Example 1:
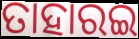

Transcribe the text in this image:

ତାହାରଇ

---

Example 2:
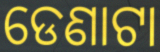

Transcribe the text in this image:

ଡେଣାଟା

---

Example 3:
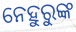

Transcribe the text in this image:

ନେହୁରୁଙ୍କ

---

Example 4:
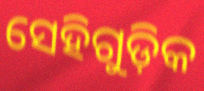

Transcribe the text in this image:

ସେହିଗୁଡ଼ିକ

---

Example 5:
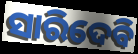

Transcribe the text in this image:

ସାରିଦେବି